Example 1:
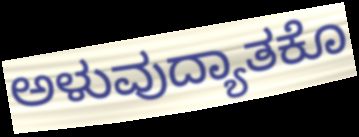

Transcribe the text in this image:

ಅಳುವುದ್ಯಾತಕೊ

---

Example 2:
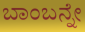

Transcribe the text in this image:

ಬಾಂಬನ್ನೇ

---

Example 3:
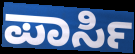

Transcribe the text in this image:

ಪಾರ್ಸಿ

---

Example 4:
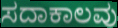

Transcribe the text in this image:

ಸದಾಕಾಲವು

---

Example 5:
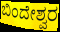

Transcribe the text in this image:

ಬಿಂದೇಶ್ವರ